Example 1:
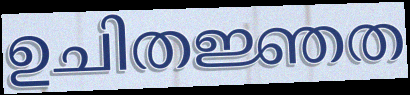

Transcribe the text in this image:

ഉചിതജ്ഞത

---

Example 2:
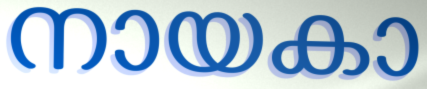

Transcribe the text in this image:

നായകാ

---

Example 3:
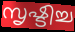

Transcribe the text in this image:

സൃഷ്ടിച്ച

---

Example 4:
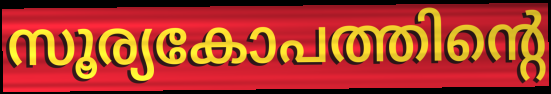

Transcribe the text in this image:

സൂര്യകോപത്തിന്റെ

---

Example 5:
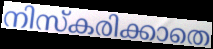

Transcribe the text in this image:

നിസ്കരിക്കാതെ